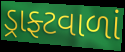
ડ્રાફ્ટવાળાં